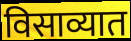
विसाव्यात